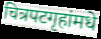
चित्रपटगृहांमधे